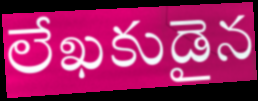
లేఖకుడైన